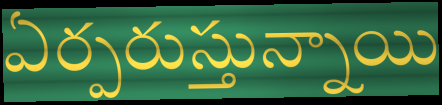
ఏర్పరుస్తున్నాయి